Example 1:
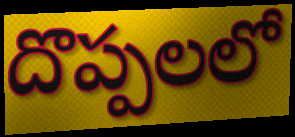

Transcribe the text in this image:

దొప్పలలో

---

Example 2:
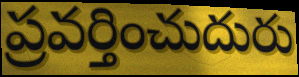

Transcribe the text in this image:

ప్రవర్తించుదురు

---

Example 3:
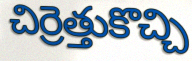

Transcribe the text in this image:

చిర్రెత్తుకొచ్చి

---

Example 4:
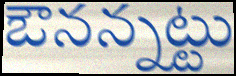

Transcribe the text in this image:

ఔనన్నట్టు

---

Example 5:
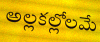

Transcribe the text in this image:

అల్లకల్లోలమే